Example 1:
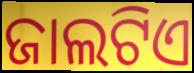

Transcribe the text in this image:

ଜାଲଟିଏ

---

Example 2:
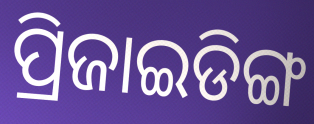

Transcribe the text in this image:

ପ୍ରିଜାଇଡିଙ୍ଗ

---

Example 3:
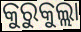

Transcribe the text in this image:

କୁରୁକୁଲ୍ଲା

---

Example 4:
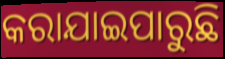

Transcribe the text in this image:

କରାଯାଇପାରୁଛି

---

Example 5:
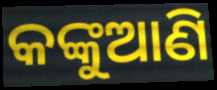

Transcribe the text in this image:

କଙ୍କୁଆଣି